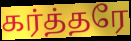
கர்த்தரே